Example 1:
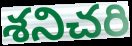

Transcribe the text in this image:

శనిచరి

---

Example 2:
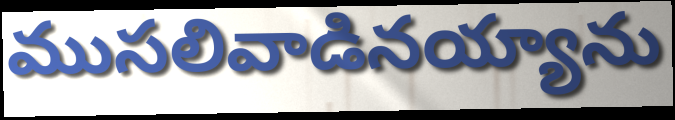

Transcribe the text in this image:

ముసలివాడినయ్యాను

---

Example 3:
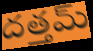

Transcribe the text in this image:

దత్తమ్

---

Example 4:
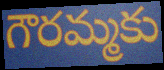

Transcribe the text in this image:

గౌరమ్మకు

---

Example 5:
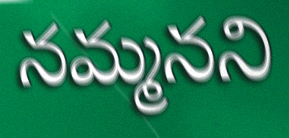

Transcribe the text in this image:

నమ్మనని